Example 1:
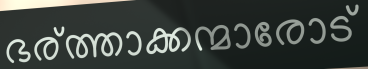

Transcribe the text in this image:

ഭര്ത്താക്കന്മാരോട്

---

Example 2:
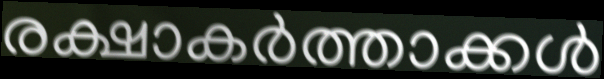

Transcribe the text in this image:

രക്ഷാകർത്താക്കൾ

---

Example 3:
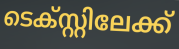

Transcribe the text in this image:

ടെക്സ്റ്റിലേക്ക്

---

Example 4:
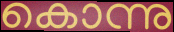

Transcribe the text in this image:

കൊന്നു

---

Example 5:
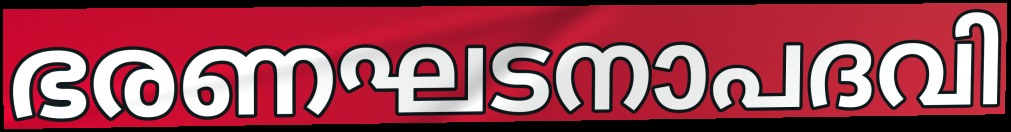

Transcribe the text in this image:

ഭരണഘടനാപദവി